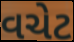
વચેટ